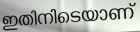
ഇതിനിടെയാണ്